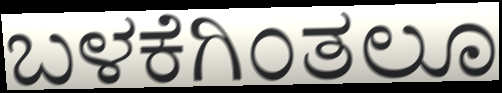
ಬಳಕೆಗಿಂತಲೂ